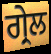
ਗ੍ਰੇਲ